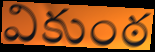
వికుంఠ